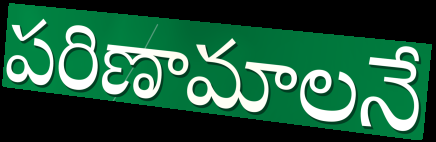
పరిణామాలనే